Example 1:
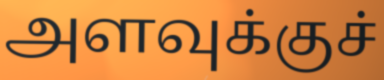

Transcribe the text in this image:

அளவுக்குச்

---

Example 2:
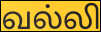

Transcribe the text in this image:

வல்லி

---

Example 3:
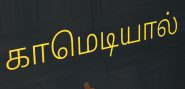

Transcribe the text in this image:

காமெடியால்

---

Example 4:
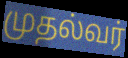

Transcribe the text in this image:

முதல்வர்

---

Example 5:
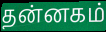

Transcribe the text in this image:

தன்னகம்